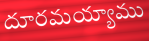
దూరమయ్యాము